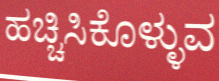
ಹಚ್ಚಿಸಿಕೊಳ್ಳುವ